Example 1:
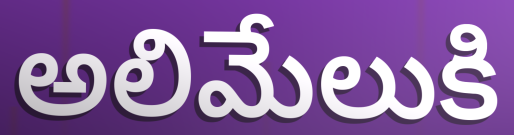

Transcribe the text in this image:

అలిమేలుకి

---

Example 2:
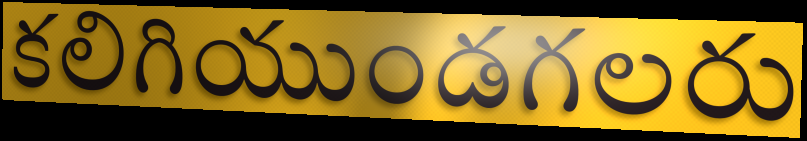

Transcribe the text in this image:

కలిగియుండగలరు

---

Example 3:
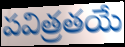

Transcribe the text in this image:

పవిత్రతయే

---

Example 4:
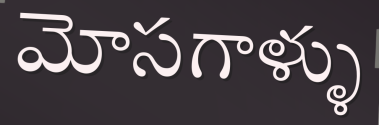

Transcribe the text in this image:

మోసగాళ్ళు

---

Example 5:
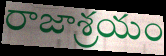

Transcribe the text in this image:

రాజాశ్రయం